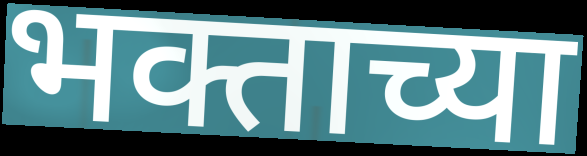
भक्ताच्या